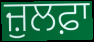
ਜ਼ੁਲਫ਼ਾ